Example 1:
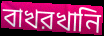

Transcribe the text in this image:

বাখরখানি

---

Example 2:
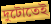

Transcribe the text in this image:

দুটোতেই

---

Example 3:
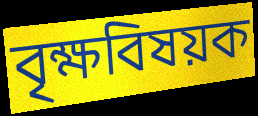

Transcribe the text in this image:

বৃক্ষবিষয়ক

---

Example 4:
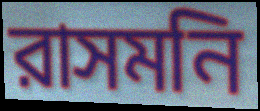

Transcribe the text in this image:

রাসমনি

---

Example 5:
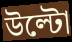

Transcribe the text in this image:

উল্টো